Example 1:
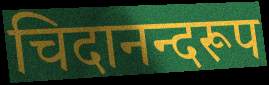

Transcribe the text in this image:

चिदानन्दरूप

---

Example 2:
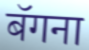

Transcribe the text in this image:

बॅगना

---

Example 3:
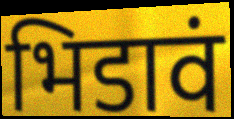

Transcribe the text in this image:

भिडावं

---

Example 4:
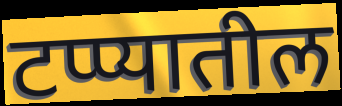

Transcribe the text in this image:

टप्प्यातील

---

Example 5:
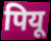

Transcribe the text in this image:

पियू